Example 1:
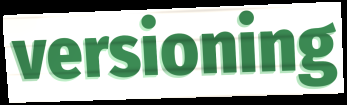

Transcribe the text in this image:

versioning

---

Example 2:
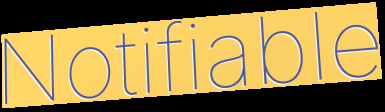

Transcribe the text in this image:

Notifiable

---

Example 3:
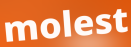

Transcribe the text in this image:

molest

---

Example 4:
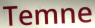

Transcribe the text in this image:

Temne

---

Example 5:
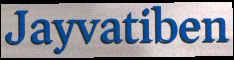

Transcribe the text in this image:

Jayvatiben